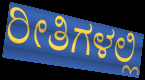
ರೀತಿಗಳಲ್ಲಿ